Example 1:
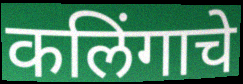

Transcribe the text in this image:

कलिंगाचे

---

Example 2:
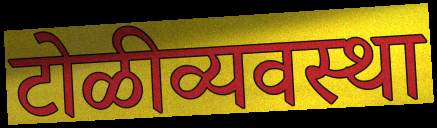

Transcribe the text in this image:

टोळीव्यवस्था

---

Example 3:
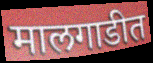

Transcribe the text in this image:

मालगाडीत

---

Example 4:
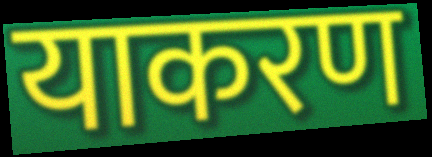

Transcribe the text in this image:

याकरण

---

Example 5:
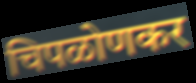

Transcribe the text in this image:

चिपळोणकर